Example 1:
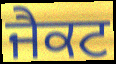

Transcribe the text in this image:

ਜੈਕਟ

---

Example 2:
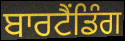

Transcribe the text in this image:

ਬਾਰਟੈਂਡਿੰਗ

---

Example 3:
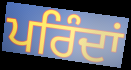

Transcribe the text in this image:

ਪਰਿੰਦਾਂ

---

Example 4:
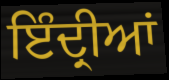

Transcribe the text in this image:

ਇੰਦ੍ਰੀਆਂ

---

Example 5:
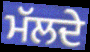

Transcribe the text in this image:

ਮੱਲਦੇ